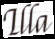
Illa